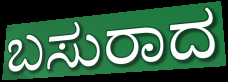
ಬಸುರಾದ